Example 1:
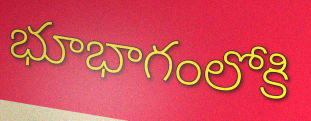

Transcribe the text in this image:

భూభాగంలోకి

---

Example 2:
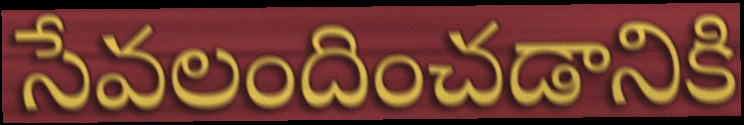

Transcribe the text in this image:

సేవలందించడానికి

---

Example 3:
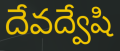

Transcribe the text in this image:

దేవద్వేషి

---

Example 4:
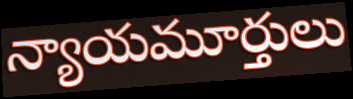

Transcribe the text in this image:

న్యాయమూర్తులు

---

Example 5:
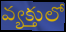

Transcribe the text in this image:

వ్యక్తులో